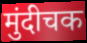
मुंदीचक